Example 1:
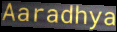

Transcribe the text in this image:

Aaradhya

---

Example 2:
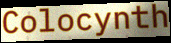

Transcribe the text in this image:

Colocynth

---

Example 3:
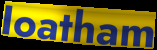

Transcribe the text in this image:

Ioatham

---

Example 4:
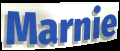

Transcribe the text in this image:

Marnie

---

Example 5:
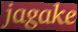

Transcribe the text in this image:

jagake